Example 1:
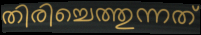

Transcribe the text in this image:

തിരിച്ചെത്തുന്നത്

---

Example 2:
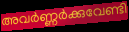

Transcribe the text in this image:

അവർണ്ണർക്കുവേണ്ടി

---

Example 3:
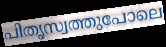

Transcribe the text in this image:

പിതൃസ്വത്തുപോലെ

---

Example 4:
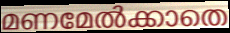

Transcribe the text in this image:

മണമേൽക്കാതെ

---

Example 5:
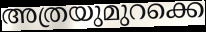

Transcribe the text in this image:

അത്രയുമുറക്കെ